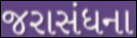
જરાસંધના